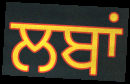
ਲਬਾਂ